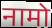
नामो